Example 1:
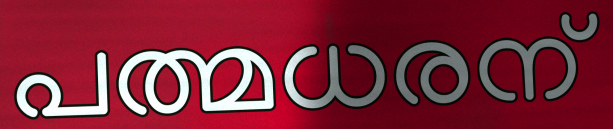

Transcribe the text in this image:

പത്മധരന്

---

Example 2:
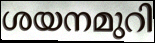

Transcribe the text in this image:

ശയനമുറി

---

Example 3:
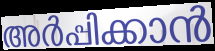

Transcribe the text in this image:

അർപ്പിക്കാൻ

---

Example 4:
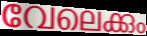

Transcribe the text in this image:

വേലെക്കും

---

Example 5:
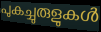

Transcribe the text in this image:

പുകച്ചുരുളുകൾ